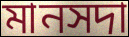
মানসদা